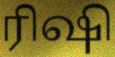
ரிஷி